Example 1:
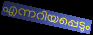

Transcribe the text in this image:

എന്നറിയപ്പെടും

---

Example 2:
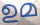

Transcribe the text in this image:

ഉമ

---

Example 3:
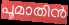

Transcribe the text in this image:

പൂമാതിൻ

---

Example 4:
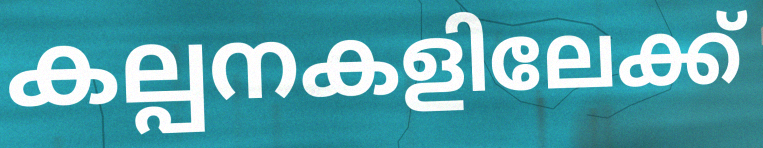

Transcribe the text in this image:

കല്പനകളിലേക്ക്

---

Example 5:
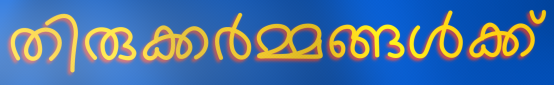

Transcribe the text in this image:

തിരുക്കർമ്മങ്ങൾക്ക്